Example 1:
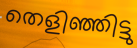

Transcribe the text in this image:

തെളിഞ്ഞിട്ടു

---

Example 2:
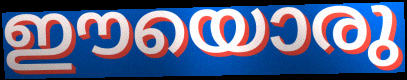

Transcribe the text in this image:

ഈയൊരു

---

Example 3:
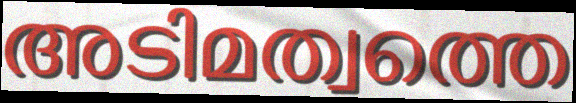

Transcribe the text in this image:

അടിമത്വത്തെ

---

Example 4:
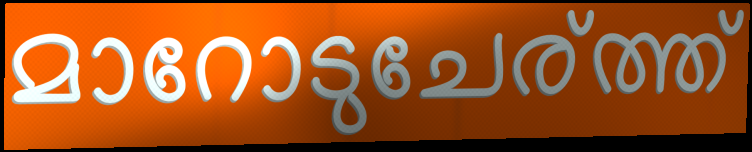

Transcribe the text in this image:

മാറോടുചേര്ത്ത്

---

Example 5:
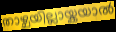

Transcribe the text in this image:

താഴ്ചയില്ലായ്കയാൽ